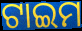
ଟାଇମ